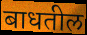
बाधतील